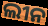
ଲୀନ